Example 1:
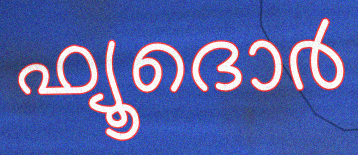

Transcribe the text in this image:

ഫ്യൂദൊർ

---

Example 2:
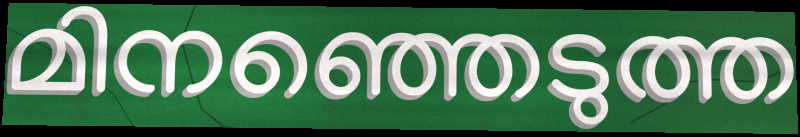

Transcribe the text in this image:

മിനഞ്ഞെടുത്ത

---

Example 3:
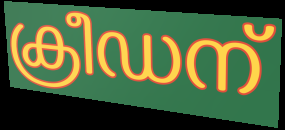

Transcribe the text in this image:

ക്രീഡന്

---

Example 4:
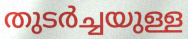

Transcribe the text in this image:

തുടർച്ചയുള്ള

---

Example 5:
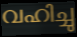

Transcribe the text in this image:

വഹിച്ചു